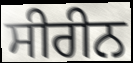
ਸੀਰੀਨ